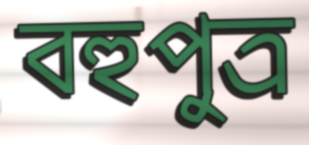
বহুপুত্র